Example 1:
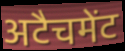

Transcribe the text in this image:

अटैचमेंट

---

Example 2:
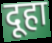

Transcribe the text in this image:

दूहा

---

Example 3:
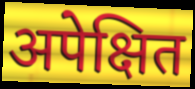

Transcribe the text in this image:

अपेक्षित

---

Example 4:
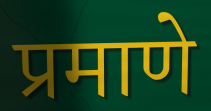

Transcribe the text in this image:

प्रमाणे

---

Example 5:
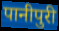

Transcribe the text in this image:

पानीपुरी